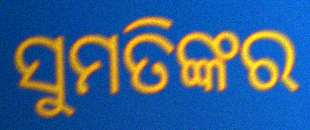
ସୁମତିଙ୍କର